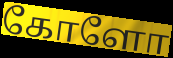
கோளோ